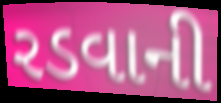
રડવાની